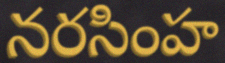
నరసింహ